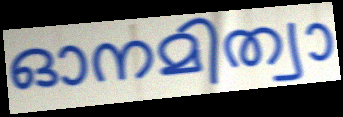
ഓനമിത്വാ